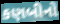
કણબીનો